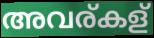
അവര്കള്